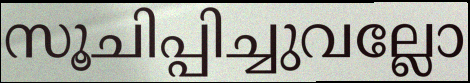
സൂചിപ്പിച്ചുവല്ലോ